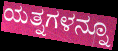
ಯತ್ನಗಳನ್ನೂ